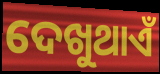
ଦେଖୁଥାଏଁ